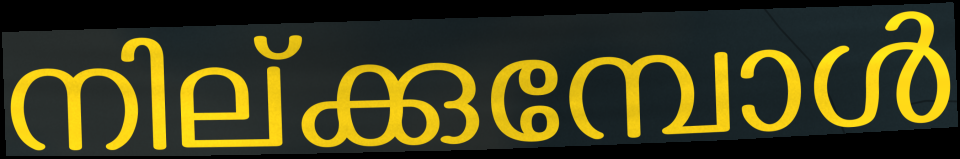
നില്ക്കുമ്പോൾ